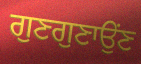
ਗੁਣਗੁਣਾਉਂਣ